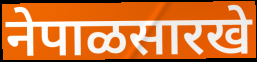
नेपाळसारखे